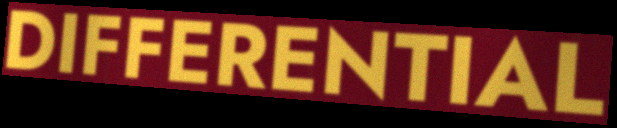
DIFFERENTIAL